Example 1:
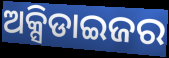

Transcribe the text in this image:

ଅକ୍ସିଡାଇଜର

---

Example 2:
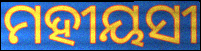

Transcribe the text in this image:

ମହୀୟସୀ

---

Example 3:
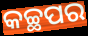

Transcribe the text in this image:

କଚ୍ଛପର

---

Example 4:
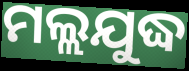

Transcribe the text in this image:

ମଲ୍ଲଯୁଦ୍ଧ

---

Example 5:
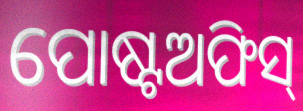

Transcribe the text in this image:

ପୋଷ୍ଟଅଫିସ୍